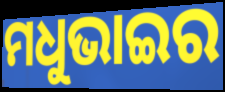
ମଧୁଭାଇର